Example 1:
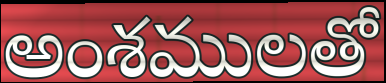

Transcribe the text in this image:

అంశములతో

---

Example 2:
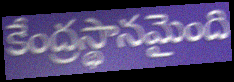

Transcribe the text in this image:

కేంద్రస్థానమైంది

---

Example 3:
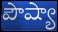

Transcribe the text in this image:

పౌష్యా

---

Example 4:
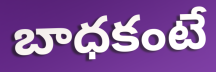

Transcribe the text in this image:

బాధకంటే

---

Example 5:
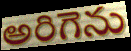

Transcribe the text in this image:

అరిగెను